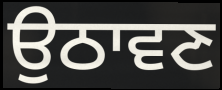
ਉਠਾਵਣ